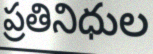
ప్రతినిధుల